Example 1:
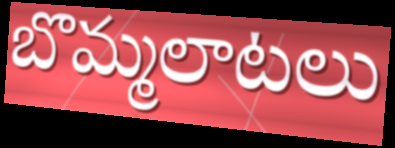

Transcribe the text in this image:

బొమ్మలాటలు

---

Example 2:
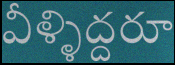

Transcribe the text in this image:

వీళ్ళిద్దరూ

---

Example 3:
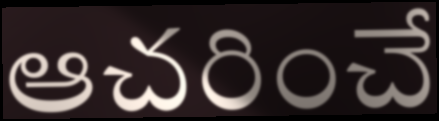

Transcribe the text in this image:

ఆచరించే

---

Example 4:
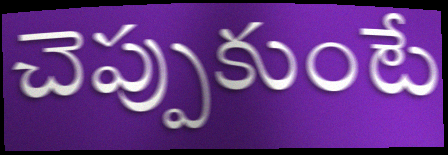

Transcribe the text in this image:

చెప్పుకుంటే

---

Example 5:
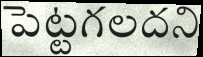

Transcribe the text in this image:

పెట్టగలదని